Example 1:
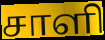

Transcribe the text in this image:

சாளி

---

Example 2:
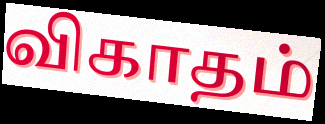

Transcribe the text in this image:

விகாதம்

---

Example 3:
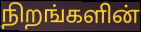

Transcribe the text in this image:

நிறங்களின்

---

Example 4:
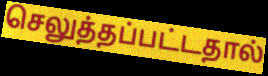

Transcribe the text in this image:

செலுத்தப்பட்டதால்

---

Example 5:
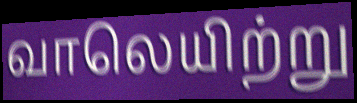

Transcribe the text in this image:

வாலெயிற்று